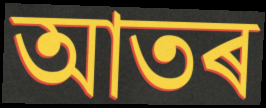
আতৰ